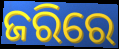
ଜରିରେ